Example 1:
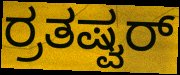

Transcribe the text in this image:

ರ್ರತಷ್ವರ್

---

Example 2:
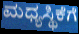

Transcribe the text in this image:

ಮಧ್ಯಸ್ಥಿಕೆಗೆ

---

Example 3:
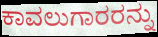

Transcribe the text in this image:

ಕಾವಲುಗಾರರನ್ನು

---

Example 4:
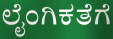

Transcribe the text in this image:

ಲೈಂಗಿಕತೆಗೆ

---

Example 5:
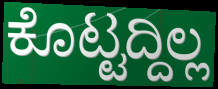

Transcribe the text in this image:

ಕೊಟ್ಟದ್ದಿಲ್ಲ